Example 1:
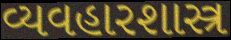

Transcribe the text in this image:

વ્યવહારશાસ્ત્ર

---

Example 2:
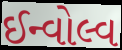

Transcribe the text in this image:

ઈન્વોલ્વ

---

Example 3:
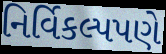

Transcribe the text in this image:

નિર્વિકલ્પપણે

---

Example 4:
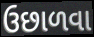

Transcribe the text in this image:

ઉછાળવા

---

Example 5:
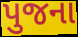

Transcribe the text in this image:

પુજના